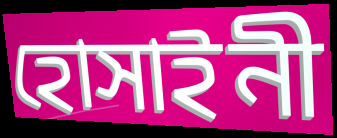
হোসাইনী